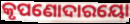
କୃପଣୋଦାରୟୋ